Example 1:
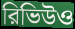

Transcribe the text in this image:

রিভিউও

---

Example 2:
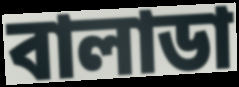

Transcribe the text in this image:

বালাডা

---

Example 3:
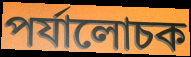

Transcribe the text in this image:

পর্যালোচক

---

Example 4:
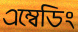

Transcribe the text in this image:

এম্বেডিং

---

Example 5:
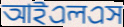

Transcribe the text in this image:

আইএলএস